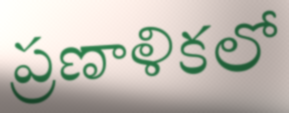
ప్రణాళికలో